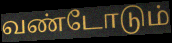
வண்டோடும்